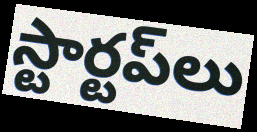
స్టార్టప్‌లు